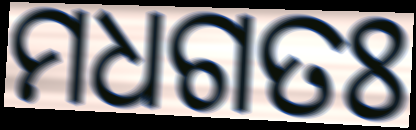
ମଧଗତଃ